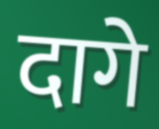
दागे